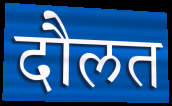
दौलत